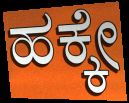
ಹಕ್ಕೇ